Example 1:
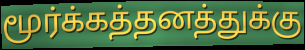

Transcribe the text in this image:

மூர்க்கத்தனத்துக்கு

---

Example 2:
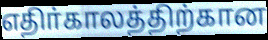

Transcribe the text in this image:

எதிர்காலத்திற்கான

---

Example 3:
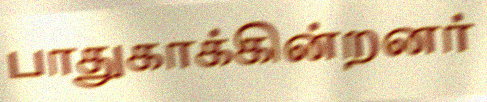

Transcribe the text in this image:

பாதுகாக்கின்றனர்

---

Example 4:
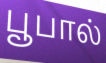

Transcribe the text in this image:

பூபால்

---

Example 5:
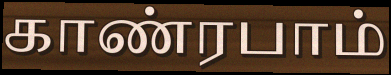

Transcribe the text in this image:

காண்ரபாம்